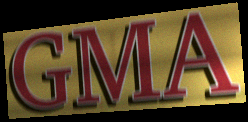
GMA